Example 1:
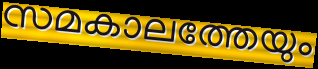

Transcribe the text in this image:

സമകാലത്തേയും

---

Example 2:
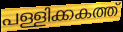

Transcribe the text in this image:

പള്ളിക്കകത്ത്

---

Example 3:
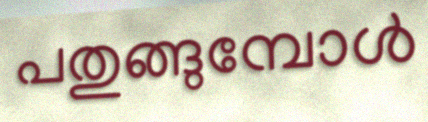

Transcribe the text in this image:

പതുങ്ങുമ്പോൾ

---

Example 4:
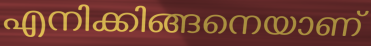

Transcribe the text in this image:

എനിക്കിങ്ങനെയാണ്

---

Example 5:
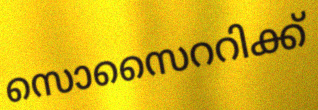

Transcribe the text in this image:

സൊസൈററിക്ക്